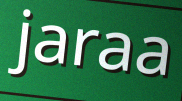
jaraa